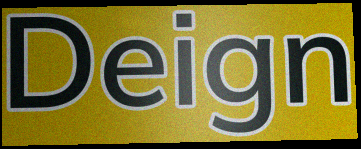
Deign